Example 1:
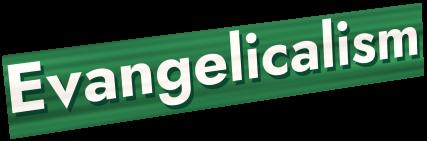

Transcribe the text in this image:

Evangelicalism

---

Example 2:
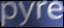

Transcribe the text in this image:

pyre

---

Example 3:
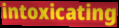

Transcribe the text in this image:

intoxicating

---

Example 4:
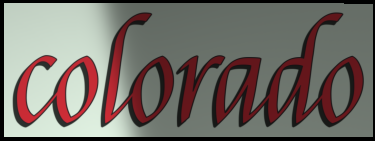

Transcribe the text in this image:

colorado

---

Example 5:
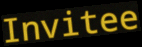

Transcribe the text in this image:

Invitee